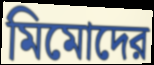
মিমোদের